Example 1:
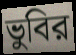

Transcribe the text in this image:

ভুবির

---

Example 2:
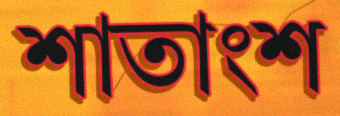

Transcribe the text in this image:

শাতাংশ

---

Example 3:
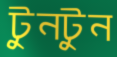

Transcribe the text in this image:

টুনটুন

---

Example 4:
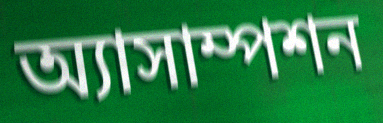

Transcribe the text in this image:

অ্যাসাম্পশন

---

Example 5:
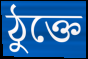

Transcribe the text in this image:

ঠুক্তে